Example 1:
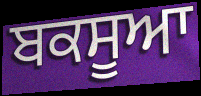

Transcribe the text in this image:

ਬਕਸੂਆ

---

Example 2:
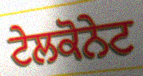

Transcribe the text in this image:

ਟੇਲਕੋਨੇਟ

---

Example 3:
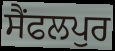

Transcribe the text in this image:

ਸੈਂਫਲਪੁਰ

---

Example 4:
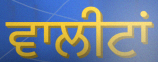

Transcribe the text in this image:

ਵਾਲੀਟਾਂ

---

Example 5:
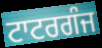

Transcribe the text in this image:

ਟਾਟਰਗੰਜ